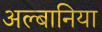
अल्बानिया